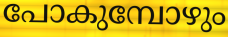
പോകുമ്പോഴും